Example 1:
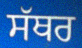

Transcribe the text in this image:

ਸੱਥਰ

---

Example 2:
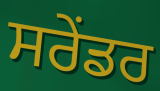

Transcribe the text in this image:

ਸਰੇਂਡਰ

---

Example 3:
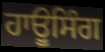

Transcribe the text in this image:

ਹਾਊਸਿੰਗ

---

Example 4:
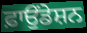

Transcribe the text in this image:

ਫ਼ਾਉਂਡੇਸ਼ਨ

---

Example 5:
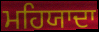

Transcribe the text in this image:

ਮਹਿਯਾਦਾ